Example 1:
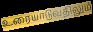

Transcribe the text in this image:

உரையாடுவதிலும்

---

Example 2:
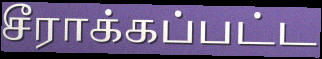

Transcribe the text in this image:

சீராக்கப்பட்ட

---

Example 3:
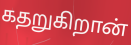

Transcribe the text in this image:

கதறுகிறான்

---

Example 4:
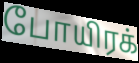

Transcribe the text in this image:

போயிரக்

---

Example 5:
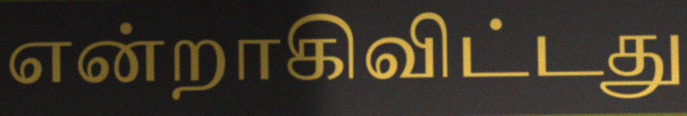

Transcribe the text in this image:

என்றாகிவிட்டது